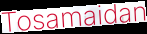
Tosamaidan